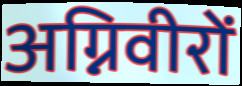
अग्निवीरों